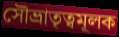
সৌভ্রাতৃত্বমূলক